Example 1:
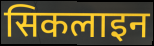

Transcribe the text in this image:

सिकलाइन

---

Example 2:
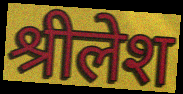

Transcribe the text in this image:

श्रीलेश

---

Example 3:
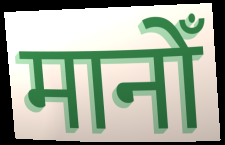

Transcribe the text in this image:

मानोँ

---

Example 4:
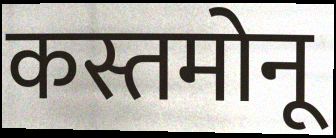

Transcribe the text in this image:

कस्तमोनू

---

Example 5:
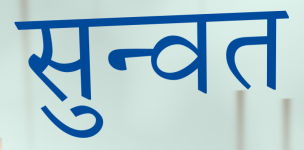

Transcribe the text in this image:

सुन्वत